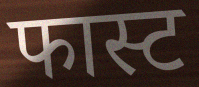
फास्ट